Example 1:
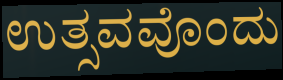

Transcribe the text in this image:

ಉತ್ಸವವೊಂದು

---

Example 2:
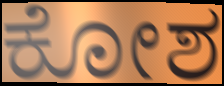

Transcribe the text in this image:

ಕೋಶ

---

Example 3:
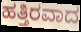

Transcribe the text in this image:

ಹತ್ತಿರವಾದ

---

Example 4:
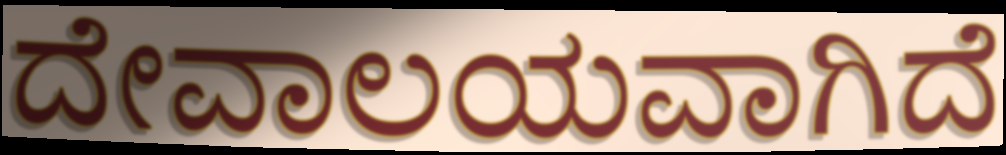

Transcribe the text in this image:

ದೇವಾಲಯವಾಗಿದೆ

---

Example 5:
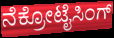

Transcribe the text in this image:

ನೆಕ್ರೋಟೈಸಿಂಗ್